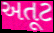
અતૂટ